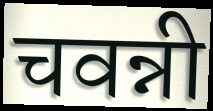
चवन्नी